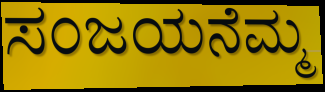
ಸಂಜಯನೆಮ್ಮ